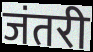
जंतरी